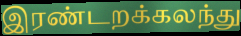
இரண்டறக்கலந்து